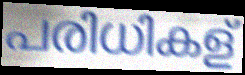
പരിധികള്